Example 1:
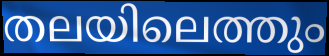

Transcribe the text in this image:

തലയിലെത്തും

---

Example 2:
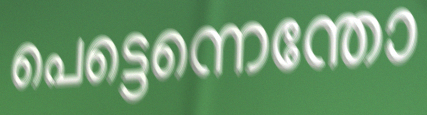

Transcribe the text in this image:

പെട്ടെന്നെന്തോ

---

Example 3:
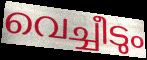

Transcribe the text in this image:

വെച്ചീടും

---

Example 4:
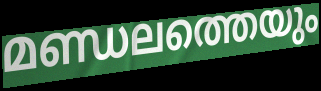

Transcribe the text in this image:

മണ്ഡലത്തെയും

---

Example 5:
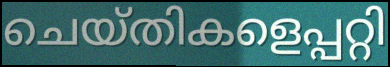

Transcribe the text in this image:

ചെയ്തികളെപ്പറ്റി